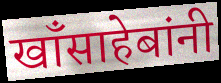
खॉंसाहेबांनी